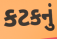
કટકનું